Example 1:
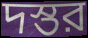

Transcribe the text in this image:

দস্তর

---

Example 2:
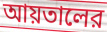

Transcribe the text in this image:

আয়তালের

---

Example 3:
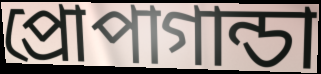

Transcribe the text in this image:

প্রোপাগান্ডা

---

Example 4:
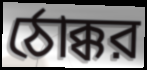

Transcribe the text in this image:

ঠোক্কর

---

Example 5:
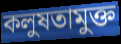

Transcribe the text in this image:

কলুষতামুক্ত